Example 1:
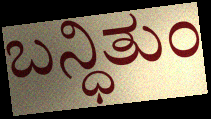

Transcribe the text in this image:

ಬನ್ಧಿತುಂ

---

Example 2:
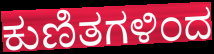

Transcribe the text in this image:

ಕುಣಿತಗಳಿಂದ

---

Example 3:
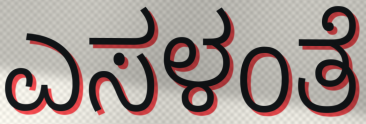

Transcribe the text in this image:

ಎಸಳಂತೆ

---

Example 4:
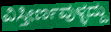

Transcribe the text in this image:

ವಿಸ್ತೀರ್ಣವುಳ್ಳದ್ದು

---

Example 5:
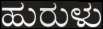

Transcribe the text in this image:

ಹುರುಳು